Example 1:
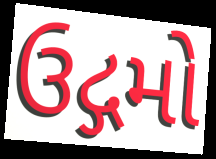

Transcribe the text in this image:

ઉદ્ગમો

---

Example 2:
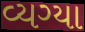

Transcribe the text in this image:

વ્યગ્યા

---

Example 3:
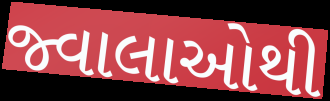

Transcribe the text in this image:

જ્વાલાઓથી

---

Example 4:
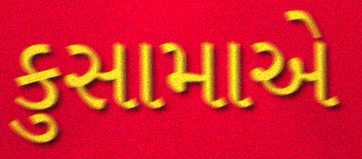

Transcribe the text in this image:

કુસામાએ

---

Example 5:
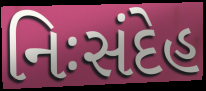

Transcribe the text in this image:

નિઃસંદેહ